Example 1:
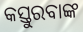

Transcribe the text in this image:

କସ୍ତୁରବାଙ୍କ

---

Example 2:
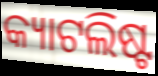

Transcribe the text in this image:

କ୍ୟାଟଲିଷ୍ଟ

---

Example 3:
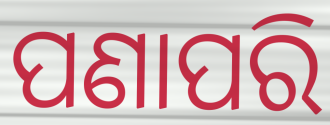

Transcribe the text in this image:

ପଣାପରି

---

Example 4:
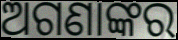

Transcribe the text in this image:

ଅଗଣାଙ୍କର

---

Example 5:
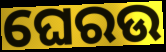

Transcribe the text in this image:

ଘେରଉ